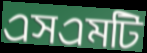
এসএমটি